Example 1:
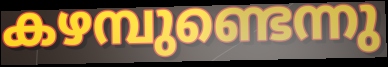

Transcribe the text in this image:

കഴമ്പുണ്ടെന്നു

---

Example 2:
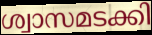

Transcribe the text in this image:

ശ്വാസമടക്കി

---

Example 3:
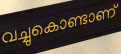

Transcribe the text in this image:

വച്ചുകൊണ്ടാണ്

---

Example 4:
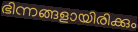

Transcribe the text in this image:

ഭിന്നങ്ങളായിരിക്കും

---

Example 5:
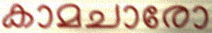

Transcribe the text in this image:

കാമചാരോ